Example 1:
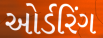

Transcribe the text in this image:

ઓર્ડરિંગ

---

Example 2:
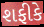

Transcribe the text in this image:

શફીકે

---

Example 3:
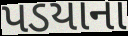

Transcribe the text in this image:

પડયાના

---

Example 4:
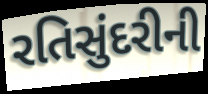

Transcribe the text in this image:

રતિસુંદરીની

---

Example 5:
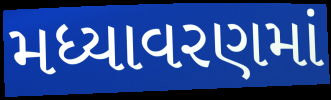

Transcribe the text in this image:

મધ્યાવરણમાં